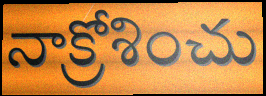
నాక్రోశించు